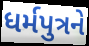
ધર્મપુત્રને